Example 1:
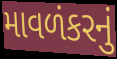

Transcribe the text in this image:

માવળંકરનું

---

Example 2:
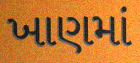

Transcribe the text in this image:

ખાણમાં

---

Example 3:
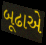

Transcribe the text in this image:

બૂઢાએ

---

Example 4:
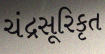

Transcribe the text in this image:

ચંદ્રસૂરિકૃત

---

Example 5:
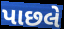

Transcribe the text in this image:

પાછલે